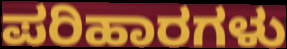
ಪರಿಹಾರಗಳು